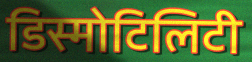
डिस्मोटिलिटी